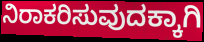
ನಿರಾಕರಿಸುವುದಕ್ಕಾಗಿ